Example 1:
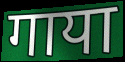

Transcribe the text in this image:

गाया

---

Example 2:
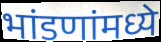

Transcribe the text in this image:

भांडणांमध्ये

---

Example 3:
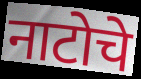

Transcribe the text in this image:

नाटोचे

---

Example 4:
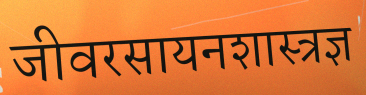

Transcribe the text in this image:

जीवरसायनशास्त्रज्ञ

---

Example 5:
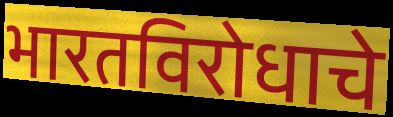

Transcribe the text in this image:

भारतविरोधाचे